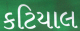
કટિયાલ